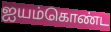
ஐயம்கொண்ட